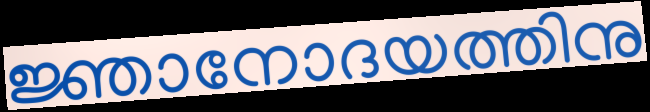
ജ്ഞാനോദയത്തിനു